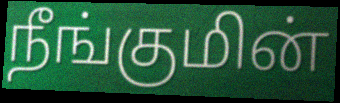
நீங்குமின்